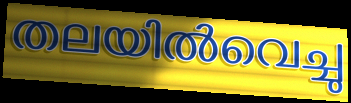
തലയിൽവെച്ചു